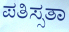
ಪತಿಸ್ಸತಾ